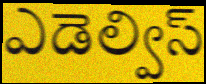
ఎడెల్విస్